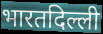
भारतदिल्ली